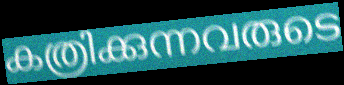
കത്രിക്കുന്നവരുടെ